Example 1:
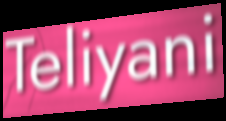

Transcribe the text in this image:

Teliyani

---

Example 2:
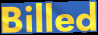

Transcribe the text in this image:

Billed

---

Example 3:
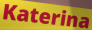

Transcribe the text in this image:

Katerina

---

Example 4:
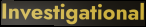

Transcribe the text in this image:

Investigational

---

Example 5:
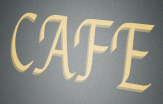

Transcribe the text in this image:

CAFE